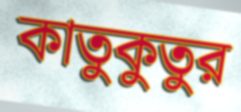
কাতুকুতুর